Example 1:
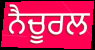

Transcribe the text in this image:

ਨੈਚੂਰਲ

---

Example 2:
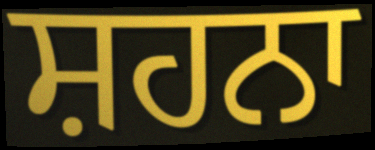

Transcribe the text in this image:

ਸ਼ਹਨਾ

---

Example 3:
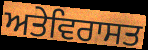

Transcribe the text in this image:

ਅਤੇਵਿਰਾਸਤ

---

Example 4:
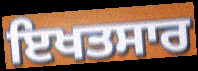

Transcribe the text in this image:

ਇਖਤਸਾਰ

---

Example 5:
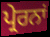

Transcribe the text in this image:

ਪ੍ਰੇਰਨਾਂ